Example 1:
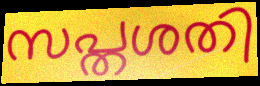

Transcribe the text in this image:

സപ്തശതി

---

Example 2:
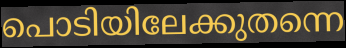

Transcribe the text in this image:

പൊടിയിലേക്കുതന്നെ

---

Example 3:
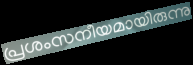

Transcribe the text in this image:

പ്രശംസനീയമായിരുന്നു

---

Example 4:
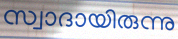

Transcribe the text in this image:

സ്വാദായിരുന്നു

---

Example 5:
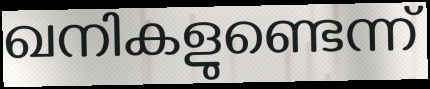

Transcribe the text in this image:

ഖനികളുണ്ടെന്ന്